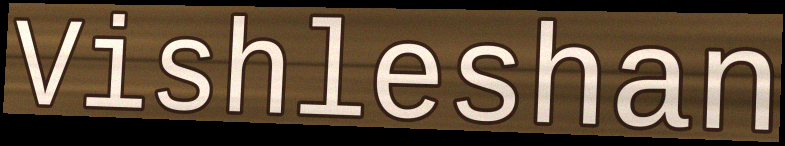
Vishleshan